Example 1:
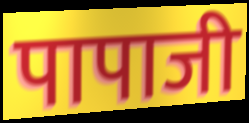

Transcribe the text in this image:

पापाजी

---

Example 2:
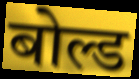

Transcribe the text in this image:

बोल्ड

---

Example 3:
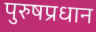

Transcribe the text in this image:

पुरुषप्रधान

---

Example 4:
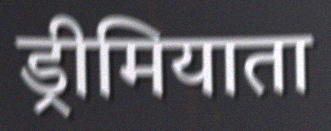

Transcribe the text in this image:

ड्रीमियाता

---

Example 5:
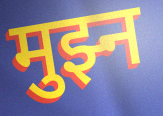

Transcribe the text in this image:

मुझ्न